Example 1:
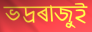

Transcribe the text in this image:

ভদ্ৰৰাজুই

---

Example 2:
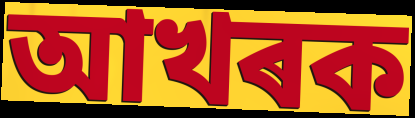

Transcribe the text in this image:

আখৰক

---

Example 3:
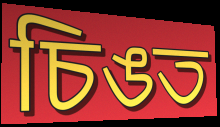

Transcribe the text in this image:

চিঙত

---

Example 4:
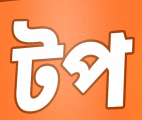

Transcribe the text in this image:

টপ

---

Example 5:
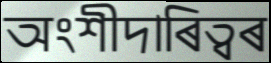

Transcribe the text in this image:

অংশীদাৰিত্বৰ